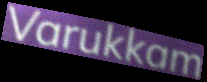
Varukkam